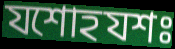
যশোহযশঃ